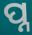
ପ୍ନ